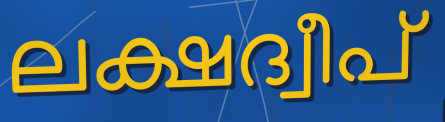
ലക്ഷദ്വീപ്